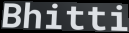
Bhitti